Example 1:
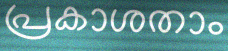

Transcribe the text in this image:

പ്രകാശതാം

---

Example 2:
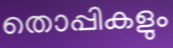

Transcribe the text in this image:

തൊപ്പികളും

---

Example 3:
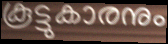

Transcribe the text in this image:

കൂട്ടുകാരനും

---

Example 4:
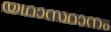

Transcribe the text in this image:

യഥാസ്ഥാനം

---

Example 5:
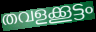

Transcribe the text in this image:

തവളക്കൂട്ടം